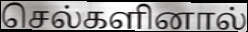
செல்களினால்